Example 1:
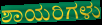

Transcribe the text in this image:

ಶಾಯರಿಗಳು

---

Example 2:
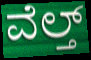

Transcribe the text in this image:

ವೆಲ್ತ್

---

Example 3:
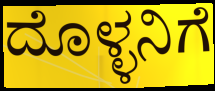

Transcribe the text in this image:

ದೊಳ್ಳನಿಗೆ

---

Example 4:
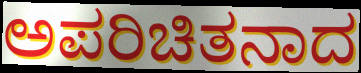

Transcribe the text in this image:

ಅಪರಿಚಿತನಾದ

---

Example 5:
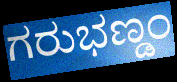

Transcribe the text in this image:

ಗರುಭಣ್ಡಂ